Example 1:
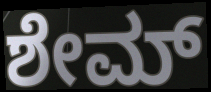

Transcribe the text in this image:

ಶೇಮ್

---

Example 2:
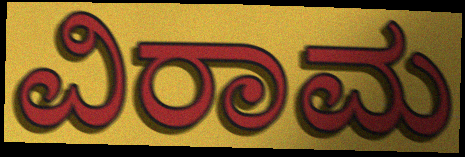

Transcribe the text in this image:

ವಿರಾಮ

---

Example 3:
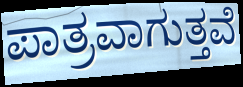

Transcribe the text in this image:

ಪಾತ್ರವಾಗುತ್ತವೆ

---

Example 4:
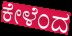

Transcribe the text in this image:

ಕೇಳೆಂದ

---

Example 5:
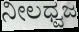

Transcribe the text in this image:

ನೀಲಧ್ವಜ